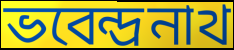
ভবেন্দ্ৰনাথ